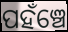
ପହଁଞ୍ଚେ